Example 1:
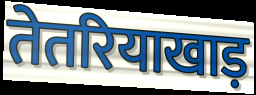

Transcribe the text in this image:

तेतरियाखाड़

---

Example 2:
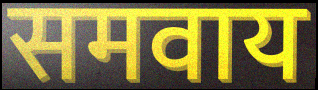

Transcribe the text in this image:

समवाय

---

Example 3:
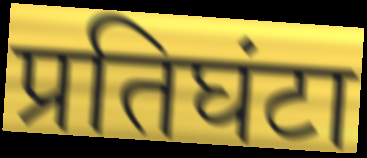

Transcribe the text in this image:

प्रतिघंटा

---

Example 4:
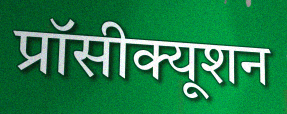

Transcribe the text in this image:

प्रॉसीक्यूशन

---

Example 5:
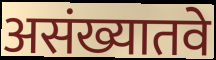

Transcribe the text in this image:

असंख्यातवे